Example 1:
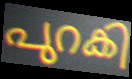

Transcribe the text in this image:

പുറകി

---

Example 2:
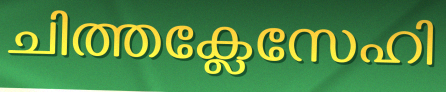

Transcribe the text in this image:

ചിത്തക്ലേസേഹി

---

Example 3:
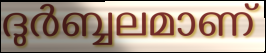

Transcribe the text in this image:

ദുർബ്ബലമാണ്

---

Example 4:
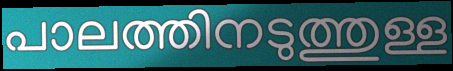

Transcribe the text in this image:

പാലത്തിനടുത്തുള്ള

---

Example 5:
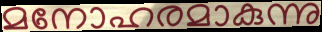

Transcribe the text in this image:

മനോഹരമാകുന്നു